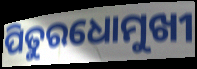
ପିତୁରଧୋମୁଖୀ